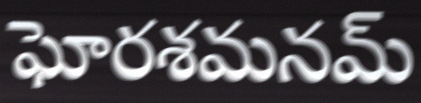
ఘోరశమనమ్